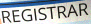
REGISTRAR